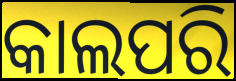
କାଲପରି